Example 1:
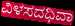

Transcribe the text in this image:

ವಿಳಸದಧಿವಾ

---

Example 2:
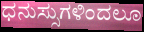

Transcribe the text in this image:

ಧನುಸ್ಸುಗಳಿಂದಲೂ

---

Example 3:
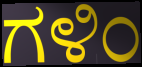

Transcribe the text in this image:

ಗಳಿಂ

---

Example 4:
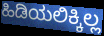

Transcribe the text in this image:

ಹಿಡಿಯಲಿಕ್ಕಿಲ್ಲ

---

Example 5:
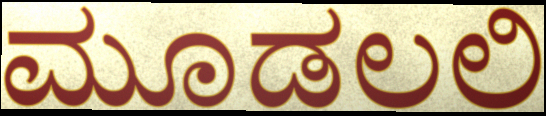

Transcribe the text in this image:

ಮೂಡಲಲಿ